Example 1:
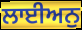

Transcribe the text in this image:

ਲਾਈਅਨੁ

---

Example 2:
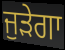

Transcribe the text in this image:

ਜੁੜੇਗਾ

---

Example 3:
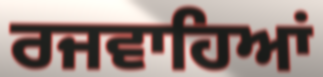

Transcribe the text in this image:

ਰਜਵਾਹਿਆਂ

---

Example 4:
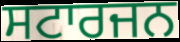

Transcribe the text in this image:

ਸਟਾਰਜਨ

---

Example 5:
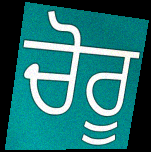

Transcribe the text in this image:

ਚੋਰੂ